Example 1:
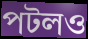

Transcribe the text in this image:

পটলও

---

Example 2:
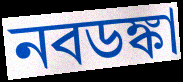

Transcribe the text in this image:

নবডঙ্কা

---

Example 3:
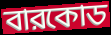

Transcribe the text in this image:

বারকোড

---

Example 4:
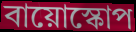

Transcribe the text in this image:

বায়োস্কোপ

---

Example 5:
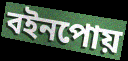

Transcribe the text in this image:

বইনপোয়